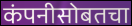
कंपनीसोबतचा